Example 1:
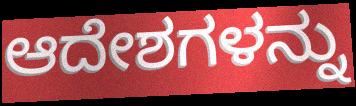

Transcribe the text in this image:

ಆದೇಶಗಳನ್ನು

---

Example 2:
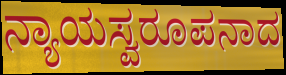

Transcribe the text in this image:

ನ್ಯಾಯಸ್ವರೂಪನಾದ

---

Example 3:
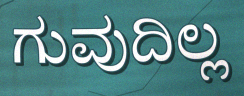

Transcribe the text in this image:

ಗುವುದಿಲ್ಲ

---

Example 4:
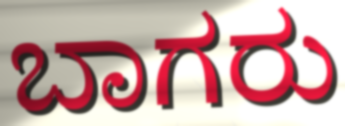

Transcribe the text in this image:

ಬಾಗರು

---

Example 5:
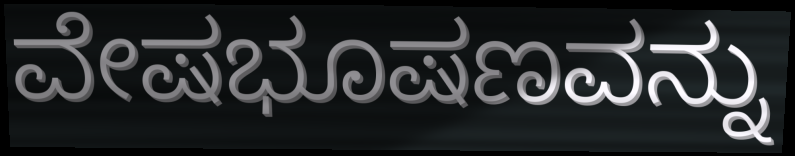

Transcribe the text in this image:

ವೇಷಭೂಷಣವನ್ನು